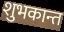
शुभकान्त